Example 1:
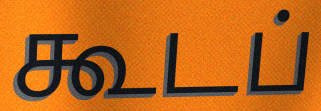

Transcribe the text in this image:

கூடப்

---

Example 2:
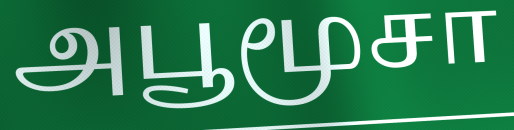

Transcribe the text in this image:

அபூமூசா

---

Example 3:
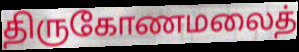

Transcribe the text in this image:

திருகோணமலைத்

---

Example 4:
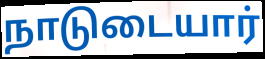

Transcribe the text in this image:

நாடுடையார்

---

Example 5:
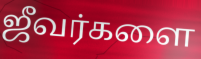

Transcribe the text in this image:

ஜீவர்களை